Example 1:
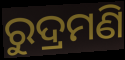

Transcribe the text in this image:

ରୁଦ୍ରମଣି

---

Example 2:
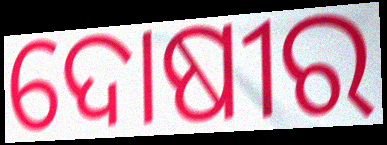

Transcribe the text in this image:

ଦୋଷୀର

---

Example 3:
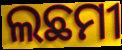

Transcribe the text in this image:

ଲଛମୀ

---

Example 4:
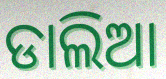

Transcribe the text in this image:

ଡାଲିଆ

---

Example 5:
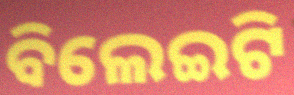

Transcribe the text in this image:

ବିଲେଇଟି